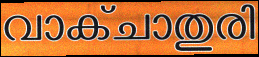
വാക്ചാതുരി